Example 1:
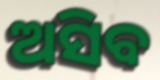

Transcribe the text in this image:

ଅସିବ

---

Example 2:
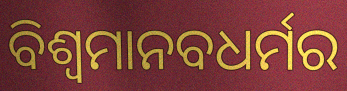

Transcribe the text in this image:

ବିଶ୍ବମାନବଧର୍ମର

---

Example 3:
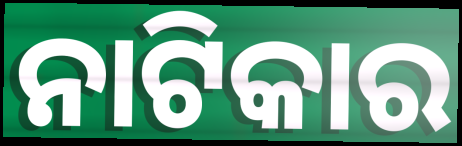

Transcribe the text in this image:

ନାଟିକାର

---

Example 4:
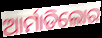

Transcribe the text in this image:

ଆର୍ମାଡିଲୋର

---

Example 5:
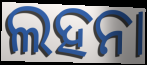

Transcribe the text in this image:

ଲହନା